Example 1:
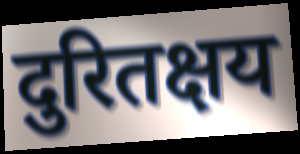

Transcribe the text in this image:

दुरितक्षय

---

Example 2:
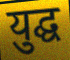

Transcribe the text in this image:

युद्घ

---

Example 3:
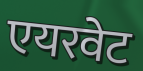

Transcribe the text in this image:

एयरवेट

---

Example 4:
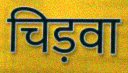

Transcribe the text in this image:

चिड़वा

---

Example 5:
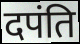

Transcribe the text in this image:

दपंति